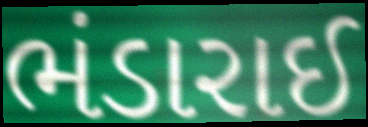
ભંડારાઈ